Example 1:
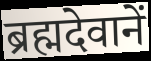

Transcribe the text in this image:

ब्रह्मदेवानें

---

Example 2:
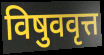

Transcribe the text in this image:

विषुववृत्त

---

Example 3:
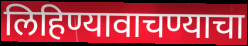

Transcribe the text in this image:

लिहिण्यावाचण्याचा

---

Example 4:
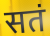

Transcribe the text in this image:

सतं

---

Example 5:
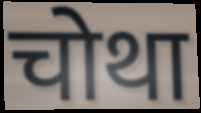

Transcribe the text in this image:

चोथा